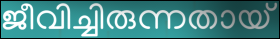
ജീവിച്ചിരുന്നതായ്